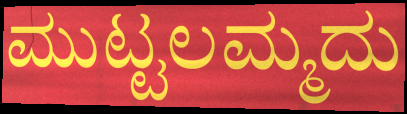
ಮುಟ್ಟಲಮ್ಮದು